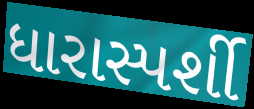
ધારાસ્પર્શી